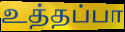
உத்தப்பா